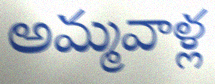
అమ్మవాళ్ల